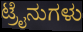
ಟ್ರೈನುಗಳು